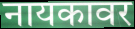
नायकावर